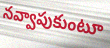
నవ్వాపుకుంటూ